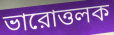
ভারোত্তলক